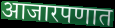
आजारपणात